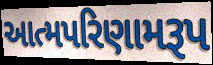
આત્મપરિણામરૂપ